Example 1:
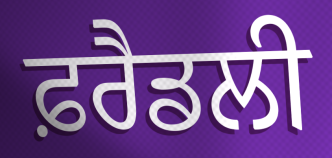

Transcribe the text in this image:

ਫ਼ਰੈਡਲੀ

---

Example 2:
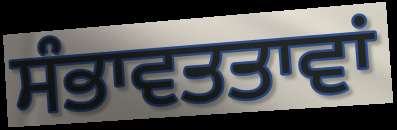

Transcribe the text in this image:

ਸੰਭਾਵਤਤਾਵਾਂ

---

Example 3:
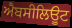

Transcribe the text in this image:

ਐਬਸੀਲਿਊਟ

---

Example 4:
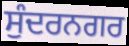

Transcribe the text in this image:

ਸੁੰਦਰਨਗਰ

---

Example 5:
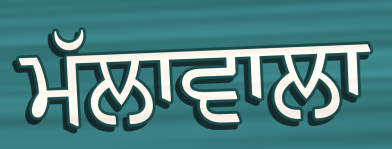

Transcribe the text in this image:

ਮੱਲਾਵਾਲਾ